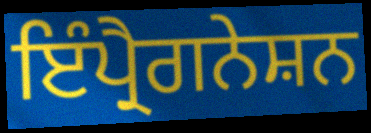
ਇੰਪ੍ਰੈਗਨੇਸ਼ਨ